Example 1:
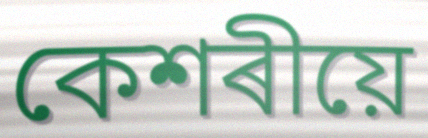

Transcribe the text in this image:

কেশৰীয়ে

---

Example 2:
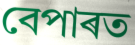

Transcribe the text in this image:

বেপাৰত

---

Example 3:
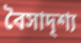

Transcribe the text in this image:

বৈসাদৃশ্য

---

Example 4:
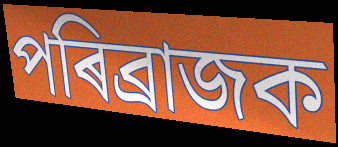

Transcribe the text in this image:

পৰিব্ৰাজক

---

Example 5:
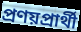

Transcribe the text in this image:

প্ৰণয়প্ৰাৰ্থী